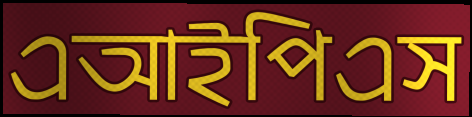
এআইপিএস